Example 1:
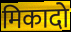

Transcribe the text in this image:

मिकादो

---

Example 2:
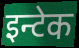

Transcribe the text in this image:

इन्टेक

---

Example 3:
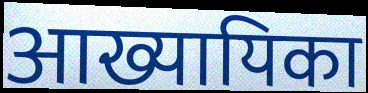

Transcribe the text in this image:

आख्यायिका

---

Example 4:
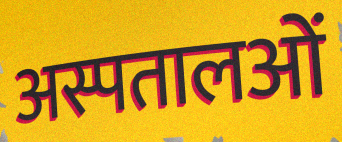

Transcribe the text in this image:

अस्पतालओं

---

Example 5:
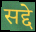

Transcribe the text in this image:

सद्दे